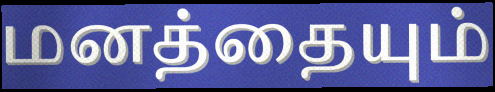
மனத்தையும்